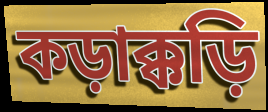
কড়াক্কড়ি